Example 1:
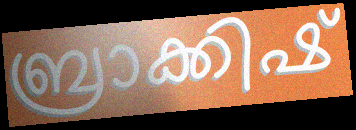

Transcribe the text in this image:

ബ്രാക്കിഷ്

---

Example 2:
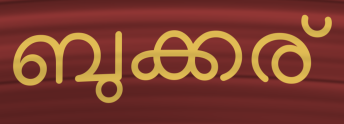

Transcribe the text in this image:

ബുക്കര്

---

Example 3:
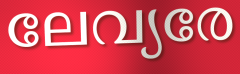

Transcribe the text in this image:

ലേവ്യരേ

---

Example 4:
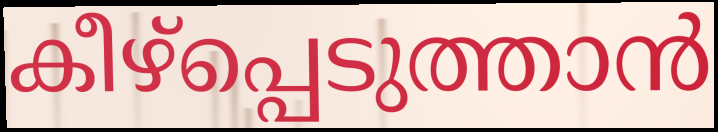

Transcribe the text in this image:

കീഴ്പ്പെടുത്താൻ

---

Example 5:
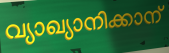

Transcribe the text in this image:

വ്യാഖ്യാനിക്കാന്